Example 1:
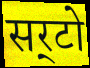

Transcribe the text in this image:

सर्टो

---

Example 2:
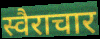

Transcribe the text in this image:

स्वैराचार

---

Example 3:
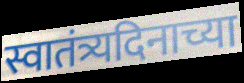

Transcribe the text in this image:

स्वातंत्र्यदिनाच्या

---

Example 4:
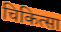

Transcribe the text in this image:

चिकित्सा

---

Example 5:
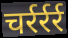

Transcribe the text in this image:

चर्रर्रर्र